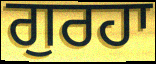
ਗੁਰਹਾ